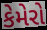
કેમેરો